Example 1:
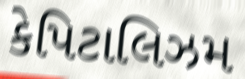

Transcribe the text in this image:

કેપિટાલિઝમ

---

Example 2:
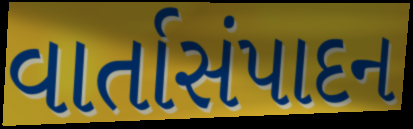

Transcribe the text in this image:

વાર્તાસંપાદન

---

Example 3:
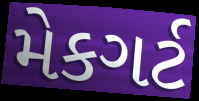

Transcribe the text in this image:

મેકગર્ટ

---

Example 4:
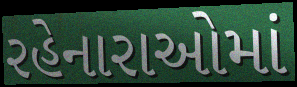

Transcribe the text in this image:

રહેનારાઓમાં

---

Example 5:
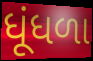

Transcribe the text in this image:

ધૂંધળા